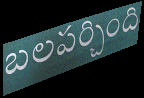
బలపర్చింది